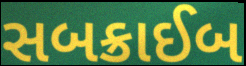
સબક્રાઈબ